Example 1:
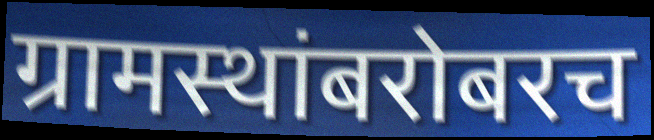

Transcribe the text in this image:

ग्रामस्थांबरोबरच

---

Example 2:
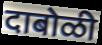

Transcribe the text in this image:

दाबोळी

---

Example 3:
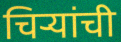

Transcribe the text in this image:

चिऱ्यांची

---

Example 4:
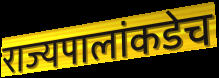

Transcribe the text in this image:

राज्यपालांकडेच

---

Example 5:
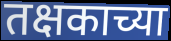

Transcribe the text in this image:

तक्षकाच्या